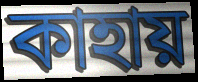
কাহায়